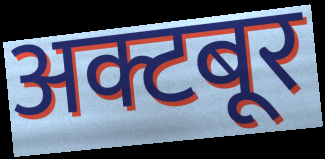
अक्टबूर